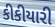
કીકીયારી